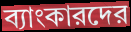
ব্যাংকারদের